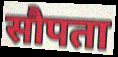
सौपता